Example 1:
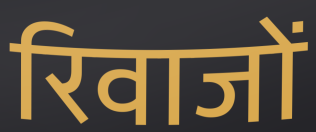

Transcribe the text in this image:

रिवाजों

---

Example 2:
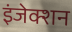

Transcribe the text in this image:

इंजेक्शन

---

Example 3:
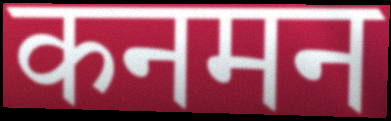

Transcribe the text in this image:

कनमन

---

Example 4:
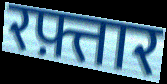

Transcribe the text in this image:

रफ़्तार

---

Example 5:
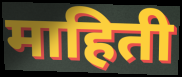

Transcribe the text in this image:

माहिती